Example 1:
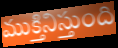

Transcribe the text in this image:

ముక్తినిస్తుంది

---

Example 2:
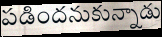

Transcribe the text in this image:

పడిందనుకున్నాడు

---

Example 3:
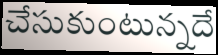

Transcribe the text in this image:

చేసుకుంటున్నదే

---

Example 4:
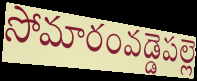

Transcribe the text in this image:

సోమారంవడ్డెపల్లె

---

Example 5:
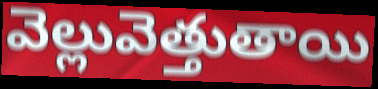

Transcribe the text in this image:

వెల్లువెత్తుతాయి